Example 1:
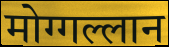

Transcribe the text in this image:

मोग्गल्लान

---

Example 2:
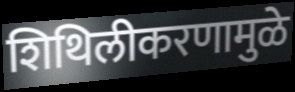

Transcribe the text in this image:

शिथिलीकरणामुळे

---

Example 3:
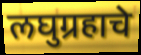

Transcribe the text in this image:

लघुग्रहाचे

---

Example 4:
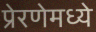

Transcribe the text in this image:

प्रेरणेमध्ये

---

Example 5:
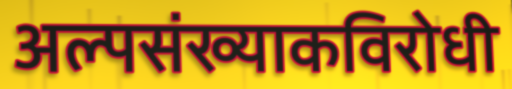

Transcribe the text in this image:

अल्पसंख्याकविरोधी